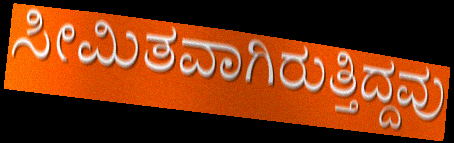
ಸೀಮಿತವಾಗಿರುತ್ತಿದ್ದವು